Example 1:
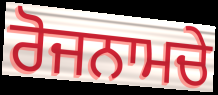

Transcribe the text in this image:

ਰੋਜਨਾਮਚੇ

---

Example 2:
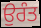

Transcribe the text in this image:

ਉਰੰਤ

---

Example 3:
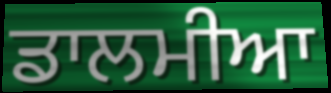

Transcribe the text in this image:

ਡਾਲਮੀਆ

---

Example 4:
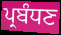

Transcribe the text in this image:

ਪ੍ਰਬੰਧਣ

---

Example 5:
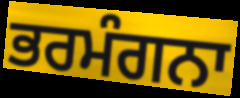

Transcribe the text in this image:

ਭਰਮੰਗਨਾ